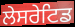
ਲੇਸਰੇਟਿਡ